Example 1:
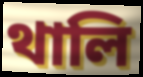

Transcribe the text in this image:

থালি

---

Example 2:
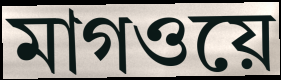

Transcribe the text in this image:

মাগওয়ে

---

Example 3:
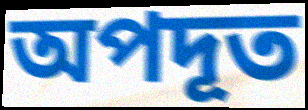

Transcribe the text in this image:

অপদূত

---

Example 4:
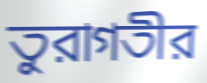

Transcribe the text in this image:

তুরাগতীর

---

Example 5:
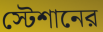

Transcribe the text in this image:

স্টেশানের